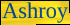
Ashroy